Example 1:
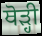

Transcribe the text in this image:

ਥੋਡ਼੍ਹੀ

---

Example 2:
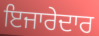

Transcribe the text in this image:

ਇਜਾਰੇਦਾਰ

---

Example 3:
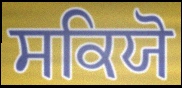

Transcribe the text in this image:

ਸਕਿਯੋ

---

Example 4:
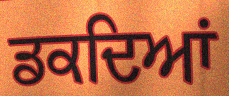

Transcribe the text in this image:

ਡਕਦਿਆਂ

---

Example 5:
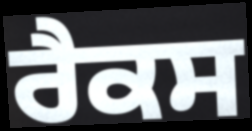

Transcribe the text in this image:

ਰੈਕਸ